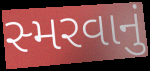
સ્મરવાનું